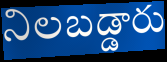
నిలబడ్డారు